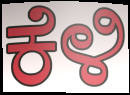
ಕೆಳಿ